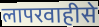
लापरवाहीसे